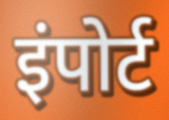
इंपोर्ट